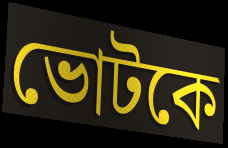
ভোটকে